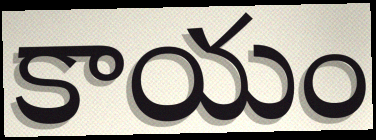
కాయం